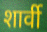
शार्वी